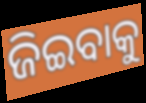
ଜିଇବାକୁ